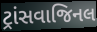
ટ્રાંસવાજિનલ